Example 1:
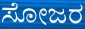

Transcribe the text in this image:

ಸೋಜರ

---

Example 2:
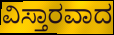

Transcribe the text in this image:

ವಿಸ್ತಾರವಾದ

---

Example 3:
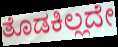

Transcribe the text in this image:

ತೊಡಕಿಲ್ಲದೇ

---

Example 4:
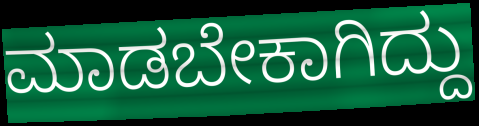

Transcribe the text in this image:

ಮಾಡಬೇಕಾಗಿದ್ದು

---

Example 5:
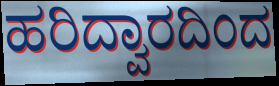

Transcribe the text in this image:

ಹರಿದ್ವಾರದಿಂದ